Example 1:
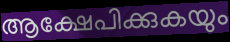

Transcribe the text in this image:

ആക്ഷേപിക്കുകയും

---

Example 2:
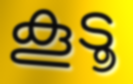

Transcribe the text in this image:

കൂടൂ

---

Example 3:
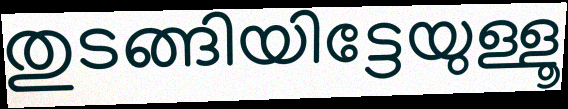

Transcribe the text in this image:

തുടങ്ങിയിട്ടേയുള്ളൂ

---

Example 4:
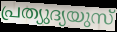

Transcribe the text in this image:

പ്രത്യുദ്യയുസ്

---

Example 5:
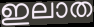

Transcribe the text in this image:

ഇലാത